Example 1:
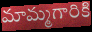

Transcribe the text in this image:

మామ్మగారికి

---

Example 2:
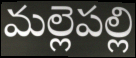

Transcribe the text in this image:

మల్లెపల్లి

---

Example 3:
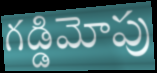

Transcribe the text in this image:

గడ్డిమోపు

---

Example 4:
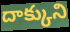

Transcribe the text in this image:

దాక్కుని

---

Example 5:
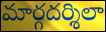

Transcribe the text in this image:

మార్గదర్శిలా